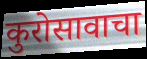
कुरोसावाचा